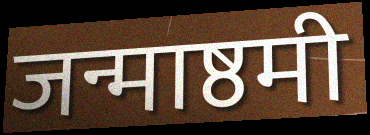
जन्माष्ठमी